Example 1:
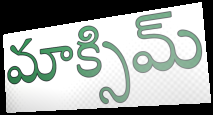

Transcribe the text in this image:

మాక్సిమ్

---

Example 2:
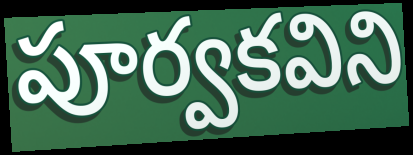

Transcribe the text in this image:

పూర్వకవిని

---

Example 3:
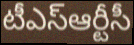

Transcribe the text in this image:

టీఎస్ఆర్టీసీ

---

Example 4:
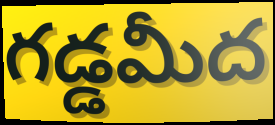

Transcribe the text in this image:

గడ్డమీద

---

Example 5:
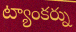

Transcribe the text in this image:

ట్యాంకర్ను